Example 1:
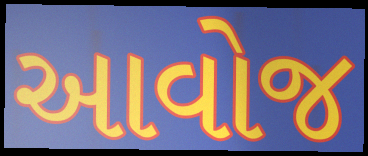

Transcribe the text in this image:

આવોજ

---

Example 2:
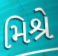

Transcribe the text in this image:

મિશ્રે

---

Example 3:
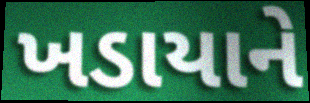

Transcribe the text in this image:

ખડાયાને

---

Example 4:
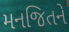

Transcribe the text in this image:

મનજિતને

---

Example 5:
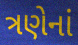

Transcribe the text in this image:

ત્રણેનાં